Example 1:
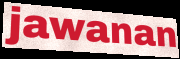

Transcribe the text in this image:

jawanan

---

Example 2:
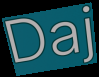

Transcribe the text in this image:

Daj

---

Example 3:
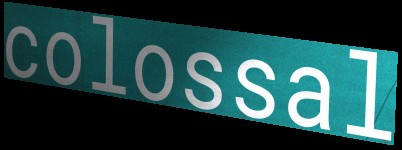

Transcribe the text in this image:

colossal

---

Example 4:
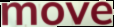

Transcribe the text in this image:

move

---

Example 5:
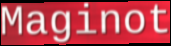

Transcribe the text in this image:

Maginot